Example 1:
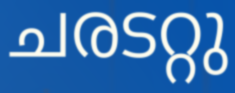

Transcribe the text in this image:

ചരടറ്റു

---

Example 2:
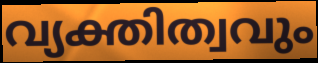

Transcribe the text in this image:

വ്യക്തിത്വവും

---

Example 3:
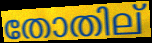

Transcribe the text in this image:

തോതില്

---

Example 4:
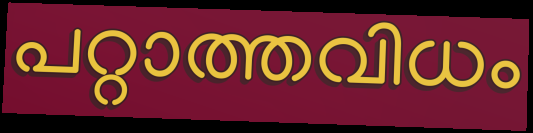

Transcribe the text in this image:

പറ്റാത്തവിധം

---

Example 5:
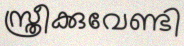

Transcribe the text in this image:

സ്ത്രീക്കുവേണ്ടി